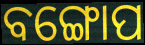
ବଙ୍ଗୋପ